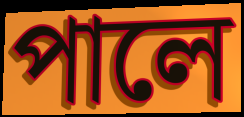
পালে